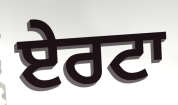
ਏਰਟਾ